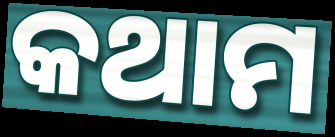
କଥାମ